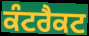
ਕੰਟਰੈਕਟ